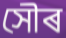
সৌৰ